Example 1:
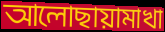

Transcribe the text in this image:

আলোছায়ামাখা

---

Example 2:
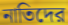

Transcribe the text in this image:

নাতিদের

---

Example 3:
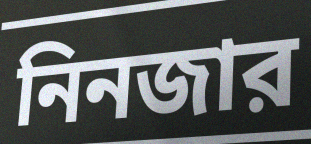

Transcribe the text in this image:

নিনজার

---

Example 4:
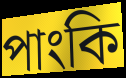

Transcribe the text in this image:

পাংকি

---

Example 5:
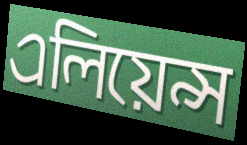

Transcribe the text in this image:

এলিয়েন্স